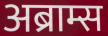
अब्राम्स